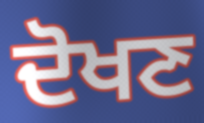
ਦੋਖਣ